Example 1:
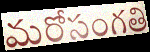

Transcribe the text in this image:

మరోసంగతి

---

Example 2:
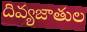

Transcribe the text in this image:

దివ్యజాతుల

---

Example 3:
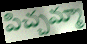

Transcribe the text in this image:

పిచ్చమ్మా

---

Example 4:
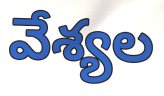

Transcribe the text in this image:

వేశ్యల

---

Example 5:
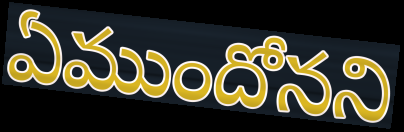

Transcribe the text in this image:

ఏముందోనని